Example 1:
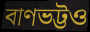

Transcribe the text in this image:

বাণভট্টও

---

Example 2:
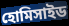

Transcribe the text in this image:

হোমিসাইড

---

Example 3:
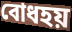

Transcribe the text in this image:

বোধহয়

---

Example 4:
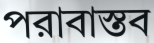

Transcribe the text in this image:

পরাবাস্তব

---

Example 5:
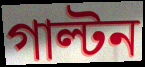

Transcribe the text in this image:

গাল্টন